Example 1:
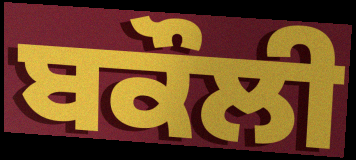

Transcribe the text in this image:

ਬਕੌਲੀ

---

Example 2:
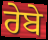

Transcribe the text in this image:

ਰੇਬੇ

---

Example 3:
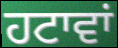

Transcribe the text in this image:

ਹਟਾਵਾਂ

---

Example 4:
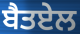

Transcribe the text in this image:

ਬੈਤਏਲ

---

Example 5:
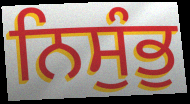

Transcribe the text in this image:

ਨਿਸੁੰਭੁ